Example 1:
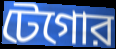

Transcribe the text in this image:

টেগোর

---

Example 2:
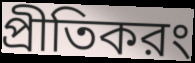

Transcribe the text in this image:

প্রীতিকরং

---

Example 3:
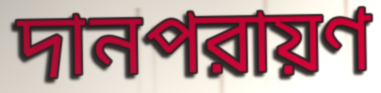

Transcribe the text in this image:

দানপরায়ণ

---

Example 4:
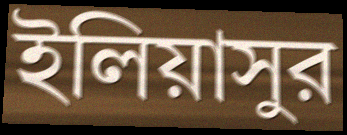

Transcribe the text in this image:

ইলিয়াসুর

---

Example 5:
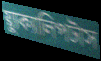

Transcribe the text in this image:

য়্যুক্যালিপটাস